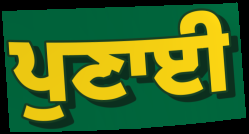
ਪੁਣਾਈ